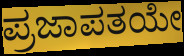
ಪ್ರಜಾಪತಯೇ